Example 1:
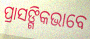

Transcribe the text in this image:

ପ୍ରାସଙ୍ଗିକଭାବେ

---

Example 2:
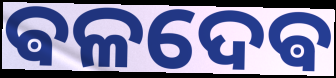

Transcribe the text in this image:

ଵଳଦେଵ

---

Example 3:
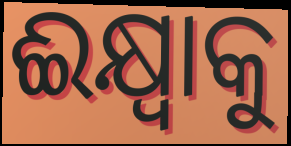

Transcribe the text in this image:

ଈକ୍ଷ୍ୱାକୁ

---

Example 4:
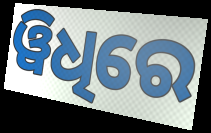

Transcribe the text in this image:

ୱିଧିରେ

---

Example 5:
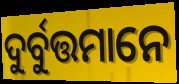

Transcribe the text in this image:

ଦୁର୍ବୁତ୍ତମାନେ